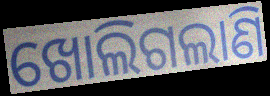
ଖୋଲିଗଲାଣି